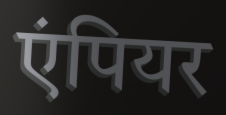
एंपियर